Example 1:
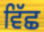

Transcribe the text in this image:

ਵਿੱਛ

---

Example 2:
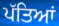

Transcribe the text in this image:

ਪੱਤਿਆਂ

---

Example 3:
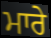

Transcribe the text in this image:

ਮਾਰੇ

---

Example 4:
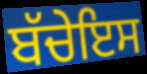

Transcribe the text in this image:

ਬੱਚੇਇਸ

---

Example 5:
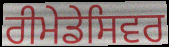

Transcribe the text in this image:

ਰੀਮੇਡੇਸਿਵਰ